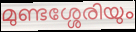
മുണ്ടശ്ശേരിയും